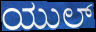
ಯುಲ್